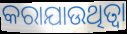
କରାଯାଉଥିତ୍ବା